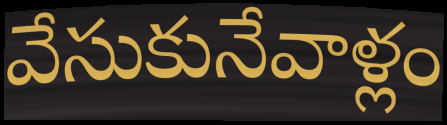
వేసుకునేవాళ్లం